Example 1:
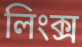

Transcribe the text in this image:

লিংক্স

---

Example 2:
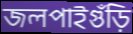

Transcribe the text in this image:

জলপাইগুঁড়ি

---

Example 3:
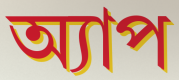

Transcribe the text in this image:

অ্যাপ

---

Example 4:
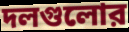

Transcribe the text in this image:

দলগুলোর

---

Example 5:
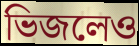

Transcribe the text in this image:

ভিজলেও